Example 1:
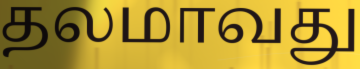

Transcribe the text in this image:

தலமாவது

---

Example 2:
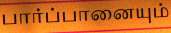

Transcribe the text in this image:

பார்ப்பானையும்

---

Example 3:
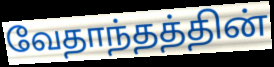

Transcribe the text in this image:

வேதாந்தத்தின்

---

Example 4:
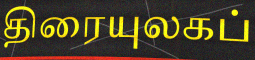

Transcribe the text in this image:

திரையுலகப்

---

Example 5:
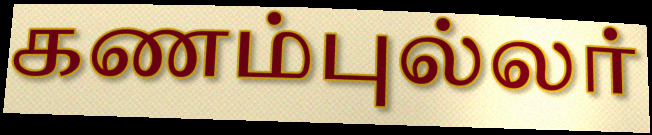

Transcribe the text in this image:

கணம்புல்லர்